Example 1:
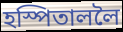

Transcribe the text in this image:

হস্পিতাললৈ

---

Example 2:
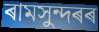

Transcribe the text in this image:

ৰামসুন্দৰৰ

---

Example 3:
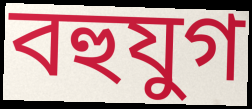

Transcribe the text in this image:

বহুযুগ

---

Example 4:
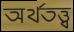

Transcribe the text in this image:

অৰ্থতত্ত্ব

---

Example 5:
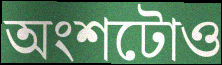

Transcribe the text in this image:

অংশটোও